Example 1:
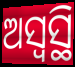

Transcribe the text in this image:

ଅସ୍ୱସ୍ଥି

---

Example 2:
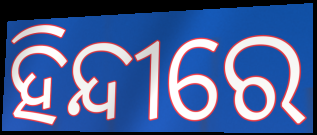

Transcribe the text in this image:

ହିନ୍ଦୀରେ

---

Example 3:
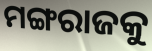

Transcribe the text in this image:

ମଙ୍ଗରାଜକୁ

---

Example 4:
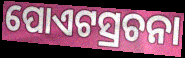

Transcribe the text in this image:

ପୋଏଟସ୍ରଚନା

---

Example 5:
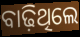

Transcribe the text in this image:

ବାଢ଼ିଥିଲେ